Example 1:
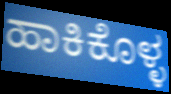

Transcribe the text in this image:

ಹಾಕಿಕೊಳ್ಳ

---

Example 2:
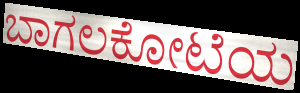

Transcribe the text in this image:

ಬಾಗಲಕೋಟೆಯ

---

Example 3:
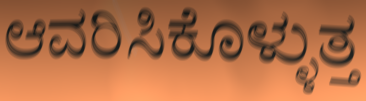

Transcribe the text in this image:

ಆವರಿಸಿಕೊಳ್ಳುತ್ತ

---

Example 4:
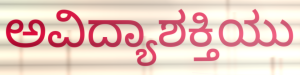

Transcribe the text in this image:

ಅವಿದ್ಯಾಶಕ್ತಿಯು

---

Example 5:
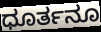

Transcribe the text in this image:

ಧೂರ್ತನೂ